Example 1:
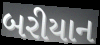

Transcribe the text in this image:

બરીયાન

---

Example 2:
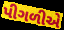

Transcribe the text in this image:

પીગળીએ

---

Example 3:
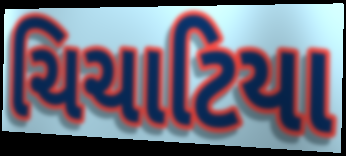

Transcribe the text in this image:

ચિચાટિયા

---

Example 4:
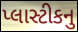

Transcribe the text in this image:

પ્લાસ્ટીકનુ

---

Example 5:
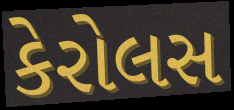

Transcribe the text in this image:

કેરોલસ